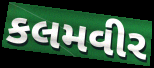
કલમવીર